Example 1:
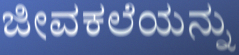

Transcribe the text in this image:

ಜೀವಕಲೆಯನ್ನು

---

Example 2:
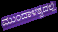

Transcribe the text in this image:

ಮುಂದಾಳತ್ವದಲ್ಲಿ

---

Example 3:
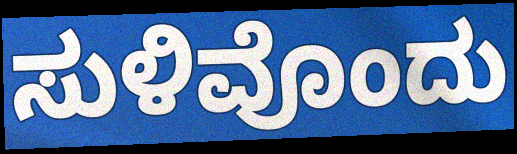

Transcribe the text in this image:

ಸುಳಿವೊಂದು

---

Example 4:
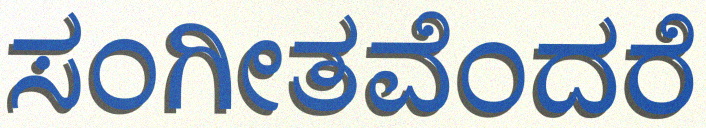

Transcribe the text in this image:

ಸಂಗೀತವೆಂದರೆ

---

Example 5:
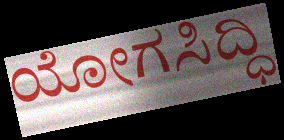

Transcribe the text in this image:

ಯೋಗಸಿದ್ಧಿ